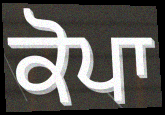
ਕੋਪਾ